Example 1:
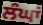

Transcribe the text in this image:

ਲੰਘਾਂ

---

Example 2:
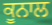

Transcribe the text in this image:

ਕੂਨਾਲ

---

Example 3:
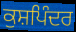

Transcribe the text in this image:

ਕੁਸ਼ਪਿੰਦਰ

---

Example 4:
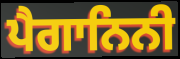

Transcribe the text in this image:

ਪੈਗਾਨਿਨੀ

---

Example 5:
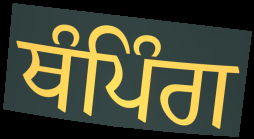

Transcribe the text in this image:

ਥੰਪਿੰਗ